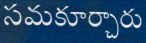
సమకూర్చారు